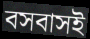
বসবাসই